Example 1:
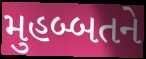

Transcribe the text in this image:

મુહબ્બતને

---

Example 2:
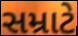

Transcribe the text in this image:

સમ્રાટે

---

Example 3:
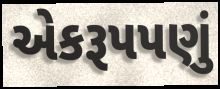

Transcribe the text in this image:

એકરૂપપણું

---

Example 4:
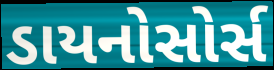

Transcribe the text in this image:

ડાયનોસોર્સ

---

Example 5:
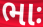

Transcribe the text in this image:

ભાઃ